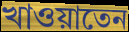
খাওয়াতেন